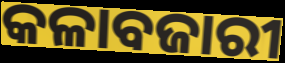
କଳାବଜାରୀ